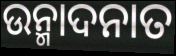
ଉନ୍ମାଦନାତ